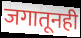
जगातूनही